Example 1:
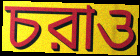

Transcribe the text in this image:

চরাও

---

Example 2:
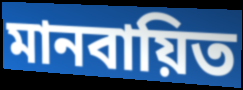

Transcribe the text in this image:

মানবায়িত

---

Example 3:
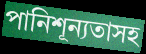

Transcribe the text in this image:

পানিশূন্যতাসহ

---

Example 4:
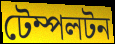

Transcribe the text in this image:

টেম্পলটন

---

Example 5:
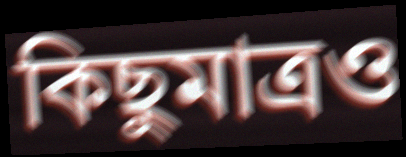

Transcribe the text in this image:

কিছুমাত্রও